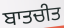
ਬਾਤਚੀਤ